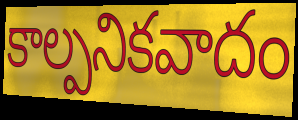
కాల్పనికవాదం